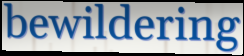
bewildering